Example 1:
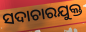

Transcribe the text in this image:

ସଦାଚାରଯୁକ୍ତ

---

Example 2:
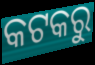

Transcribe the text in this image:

କଟକରୁ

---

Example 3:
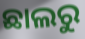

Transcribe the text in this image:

ଛାଲରୁ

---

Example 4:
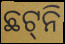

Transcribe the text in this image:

ଛଟ୍‌ନି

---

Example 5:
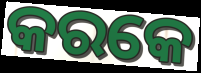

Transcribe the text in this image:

କରକେ